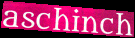
aschinch